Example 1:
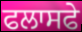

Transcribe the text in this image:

ਫਲਾਸਫੇ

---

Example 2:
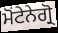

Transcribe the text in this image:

ਮੋਂਟੇਨੇਗ੍ਰੋ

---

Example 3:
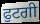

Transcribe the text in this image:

ਫੁਟਗੀ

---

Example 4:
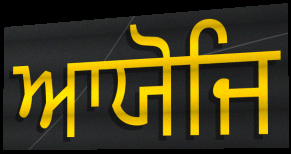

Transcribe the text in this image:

ਆਯੋਜਿ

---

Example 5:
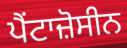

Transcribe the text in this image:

ਪੈਂਟਾਜ਼ੋਸੀਨ